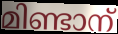
മിണ്ടാന്